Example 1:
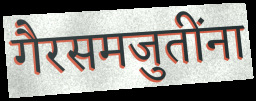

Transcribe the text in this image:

गैरसमजुतींना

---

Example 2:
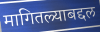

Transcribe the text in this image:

मागितल्याबद्दल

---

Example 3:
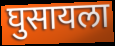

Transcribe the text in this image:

घुसायला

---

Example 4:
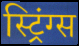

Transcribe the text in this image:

स्ट्रिंग्स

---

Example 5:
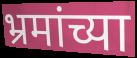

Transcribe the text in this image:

भ्रमांच्या